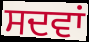
ਸਦਵਾਂ